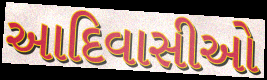
આદિવાસીઓ